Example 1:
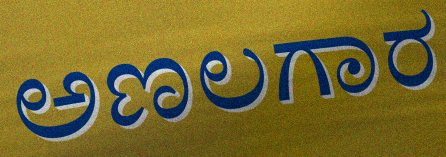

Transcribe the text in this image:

ಅಣಲಗಾರ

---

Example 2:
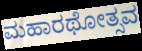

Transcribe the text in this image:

ಮಹಾರಥೋತ್ಸವ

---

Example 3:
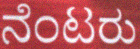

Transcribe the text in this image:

ನೆಂಟರು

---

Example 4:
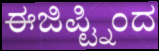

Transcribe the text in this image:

ಈಜಿಪ್ಟ್ನಿಂದ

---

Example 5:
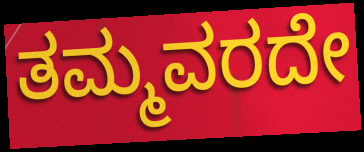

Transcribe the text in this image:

ತಮ್ಮವರದೇ